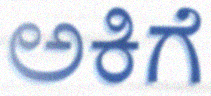
ಅಕಿಗೆ